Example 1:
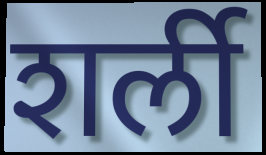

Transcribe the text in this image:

शर्ली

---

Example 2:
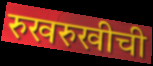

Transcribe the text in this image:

रुखरुखीची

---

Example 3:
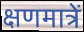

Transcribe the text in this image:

क्षणमात्रें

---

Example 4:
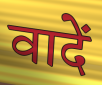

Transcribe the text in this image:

वादें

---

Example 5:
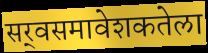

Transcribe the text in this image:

सर्वसमावेशकतेला